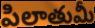
పిలాతుమీ